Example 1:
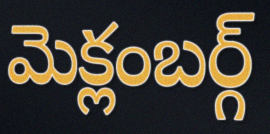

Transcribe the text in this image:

మెక్లంబర్గ్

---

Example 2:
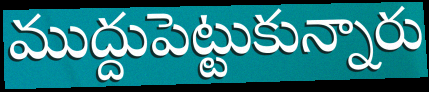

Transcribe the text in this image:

ముద్దుపెట్టుకున్నారు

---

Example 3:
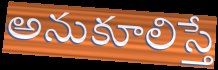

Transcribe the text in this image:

అనుకూలిస్తే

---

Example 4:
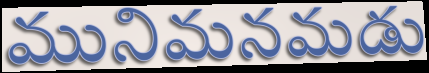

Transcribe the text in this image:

మునిమనమడు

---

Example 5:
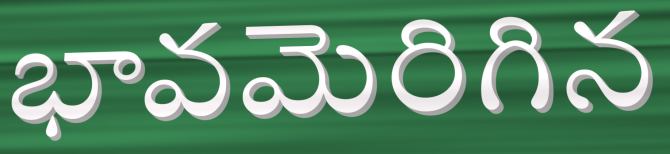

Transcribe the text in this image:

భావమెరిగిన